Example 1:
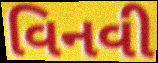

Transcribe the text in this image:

વિનવી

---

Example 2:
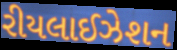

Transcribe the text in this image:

રીયલાઈઝેશન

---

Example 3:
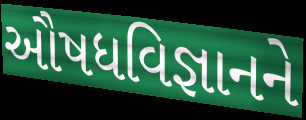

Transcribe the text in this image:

ઔષધવિજ્ઞાનને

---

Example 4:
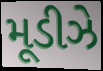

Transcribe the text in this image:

મૂડીઝે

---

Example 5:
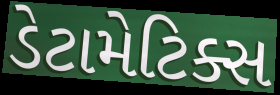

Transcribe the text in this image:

ડેટામેટિક્સ